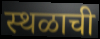
स्थळाची